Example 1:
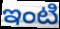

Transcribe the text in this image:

ఇంటి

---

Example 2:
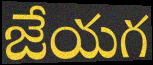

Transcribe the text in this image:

జేయగ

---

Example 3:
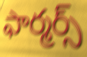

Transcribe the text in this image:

ఫార్మర్స్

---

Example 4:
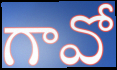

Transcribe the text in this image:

గావో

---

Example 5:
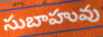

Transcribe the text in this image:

సుబాహువు